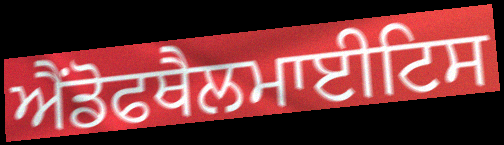
ਐਂਡੋਫਥੈਲਮਾਈਟਿਸ